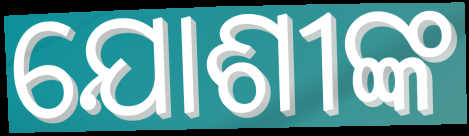
ଯୋଶୀଙ୍କ